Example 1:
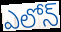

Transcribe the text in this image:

ఎలోన్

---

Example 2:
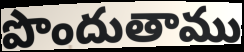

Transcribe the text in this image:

పొందుతాము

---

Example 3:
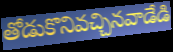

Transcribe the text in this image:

తోడుకొనివచ్చినవాడేడి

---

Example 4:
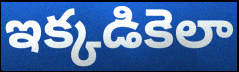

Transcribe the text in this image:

ఇక్కడికెలా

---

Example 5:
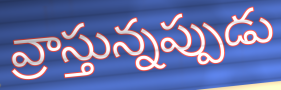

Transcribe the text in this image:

వ్రాస్తున్నప్పుడు